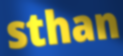
sthan